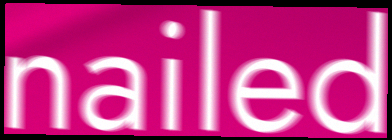
nailed